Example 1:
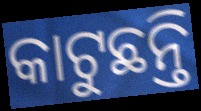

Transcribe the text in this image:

କାଟୁଛନ୍ତି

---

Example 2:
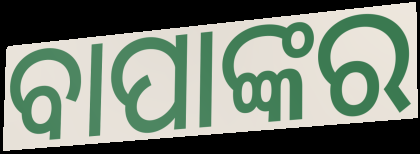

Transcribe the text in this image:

ବାପାଙ୍କର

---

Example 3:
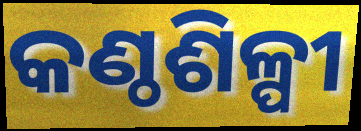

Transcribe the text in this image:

କଣ୍ଠଶିଳ୍ପୀ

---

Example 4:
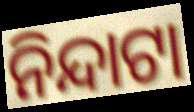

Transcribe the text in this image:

ନିନ୍ଦାଟା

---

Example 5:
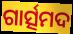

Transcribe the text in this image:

ଗାର୍ତ୍ସମଦ